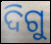
ଦିଗୁ